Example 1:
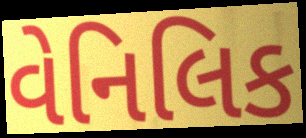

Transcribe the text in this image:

વેનિલિક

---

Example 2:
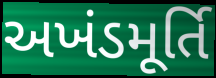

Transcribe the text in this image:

અખંડમૂર્તિ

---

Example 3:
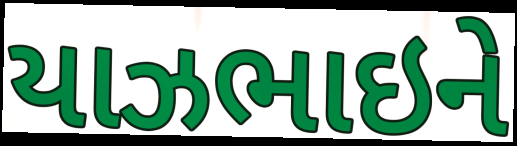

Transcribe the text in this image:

યાઝભાઇને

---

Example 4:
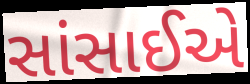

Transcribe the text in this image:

સાંસાઈએ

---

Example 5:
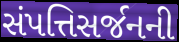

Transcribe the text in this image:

સંપત્તિસર્જનની